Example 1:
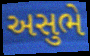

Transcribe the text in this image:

અસુભે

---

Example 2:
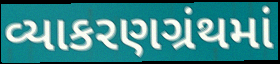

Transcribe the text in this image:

વ્યાકરણગ્રંથમાં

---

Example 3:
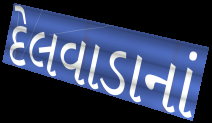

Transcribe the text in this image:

દેલવાડાનાં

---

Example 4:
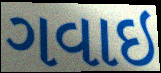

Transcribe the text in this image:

ગવાઇ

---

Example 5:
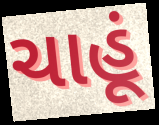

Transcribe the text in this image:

ચાહૂં